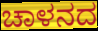
ಚಾಳನದ